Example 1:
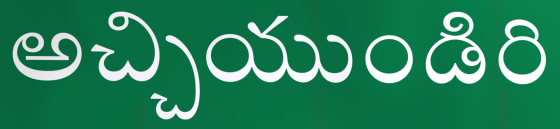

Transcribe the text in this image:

అచ్చియుండిరి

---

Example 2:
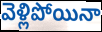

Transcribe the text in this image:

వెళ్లిపోయినా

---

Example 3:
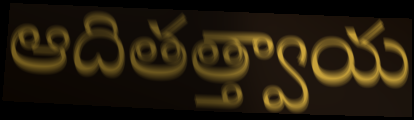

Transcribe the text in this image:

ఆదితత్త్వాయ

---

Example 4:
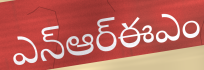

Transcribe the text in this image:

ఎన్ఆర్ఈఎం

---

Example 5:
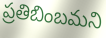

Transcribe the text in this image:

ప్రతిబింబమని